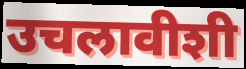
उचलावीशी